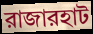
রাজারহাট